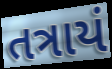
તત્રાયં